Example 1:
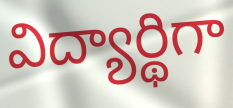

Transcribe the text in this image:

విద్యార్థిగా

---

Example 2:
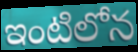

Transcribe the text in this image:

ఇంటిలోన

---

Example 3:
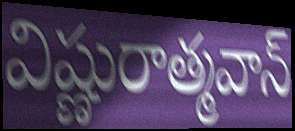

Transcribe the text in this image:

విష్ణురాత్మవాన్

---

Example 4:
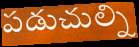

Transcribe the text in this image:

పడుచుల్ని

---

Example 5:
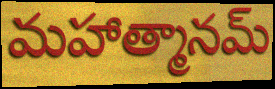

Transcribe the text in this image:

మహాత్మానమ్